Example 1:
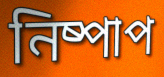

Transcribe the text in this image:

নিষ্পাপ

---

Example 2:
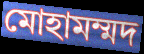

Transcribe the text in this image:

মোহামম্মদ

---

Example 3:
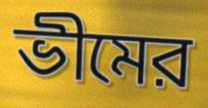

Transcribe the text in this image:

ভীমের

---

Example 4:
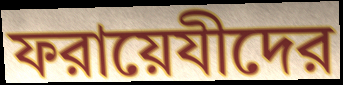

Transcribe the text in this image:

ফরায়েযীদের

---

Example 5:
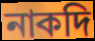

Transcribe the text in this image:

নাকদি